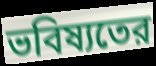
ভবিষ্যতের